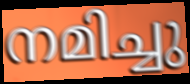
നമിച്ചു